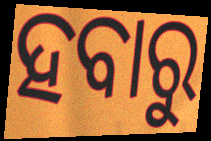
ହବାରୁ